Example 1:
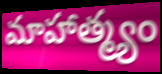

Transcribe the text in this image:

మాహాత్మ్యం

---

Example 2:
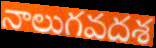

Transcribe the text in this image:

నాలుగవదశ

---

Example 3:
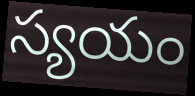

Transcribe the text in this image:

స్యయం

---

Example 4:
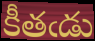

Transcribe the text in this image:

కీతఁడు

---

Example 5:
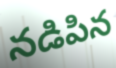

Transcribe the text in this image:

నడిపిన